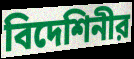
বিদেশিনীর